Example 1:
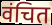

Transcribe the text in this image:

वंचित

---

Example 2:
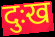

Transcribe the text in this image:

दुःख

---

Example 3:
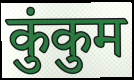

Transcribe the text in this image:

कुंकुम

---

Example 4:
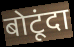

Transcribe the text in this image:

बोटूंदा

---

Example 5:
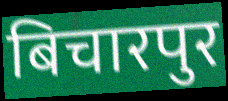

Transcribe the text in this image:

बिचारपुर